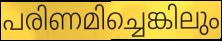
പരിണമിച്ചെങ്കിലും